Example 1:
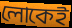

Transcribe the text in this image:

লোকেই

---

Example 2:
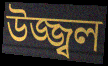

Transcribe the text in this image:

উজ্জ্বল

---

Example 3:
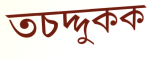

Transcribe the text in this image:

তচদ্দুকক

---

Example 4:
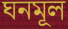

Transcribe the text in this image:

ঘনমূল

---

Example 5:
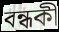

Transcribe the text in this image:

বন্ধকী